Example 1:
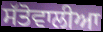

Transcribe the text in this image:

ਸੱਤੋਵਾਲੀਆ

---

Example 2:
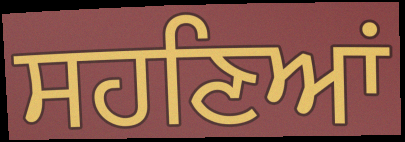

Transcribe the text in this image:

ਸਹਣਿਆਂ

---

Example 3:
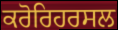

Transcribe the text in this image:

ਕਰੋਰਿਹਰਸਲ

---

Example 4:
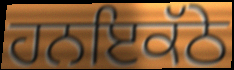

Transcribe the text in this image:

ਹਨਇਕੱਠੇ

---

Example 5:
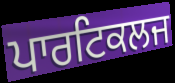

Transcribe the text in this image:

ਪਾਰਟਿਕਲਜ